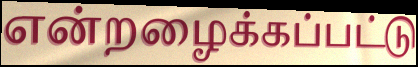
என்றழைக்கப்பட்டு